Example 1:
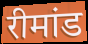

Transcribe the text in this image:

रीमांड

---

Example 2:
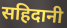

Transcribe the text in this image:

सहिदानी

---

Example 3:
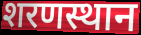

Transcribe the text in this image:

शरणस्थान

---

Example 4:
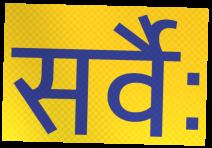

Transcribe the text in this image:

सर्वैः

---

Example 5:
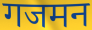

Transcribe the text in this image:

गजमन